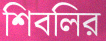
শিবলির